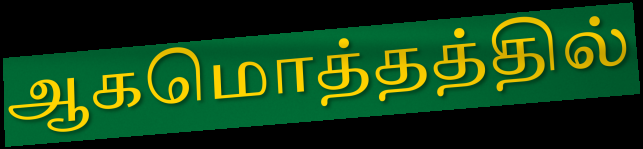
ஆகமொத்தத்தில்